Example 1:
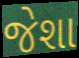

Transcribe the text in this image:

જેશા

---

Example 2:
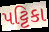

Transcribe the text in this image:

પટ્ટિકા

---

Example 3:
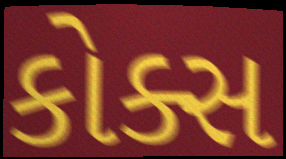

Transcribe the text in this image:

કોક્સ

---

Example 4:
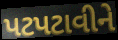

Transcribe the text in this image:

પટપટાવીને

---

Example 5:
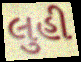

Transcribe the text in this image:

લુહી